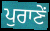
ਪੁਰਾਣੇਂ